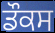
ਡੌਕਸ